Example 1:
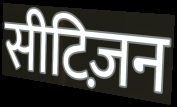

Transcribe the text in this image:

सीटिज़न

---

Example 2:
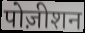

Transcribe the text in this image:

पोज़ीशन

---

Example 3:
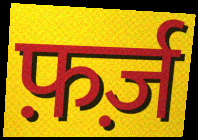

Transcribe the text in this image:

फ़र्ज़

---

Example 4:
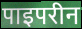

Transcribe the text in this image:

पाइपरीन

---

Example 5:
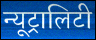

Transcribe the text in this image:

न्यूट्रालिटी